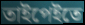
তাইপেইতে